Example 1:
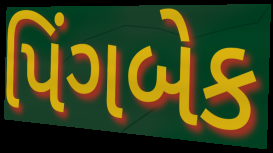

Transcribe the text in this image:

પિંગબેક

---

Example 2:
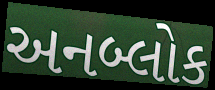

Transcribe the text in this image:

અનબ્લોક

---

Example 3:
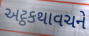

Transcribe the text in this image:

અટ્ઠકથાવચને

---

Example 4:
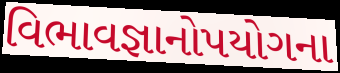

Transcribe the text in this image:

વિભાવજ્ઞાનોપયોગના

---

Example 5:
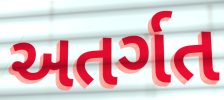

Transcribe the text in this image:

અતર્ગત